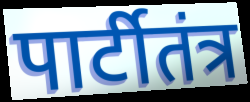
पार्टीतंत्र